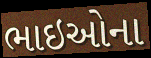
ભાઇઓના